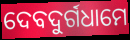
ଦେବଦୁର୍ଗଧାମେ